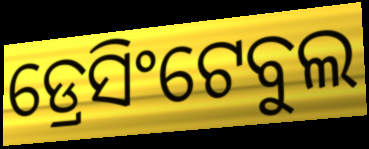
ଡ୍ରେସିଂଟେବୁଲ